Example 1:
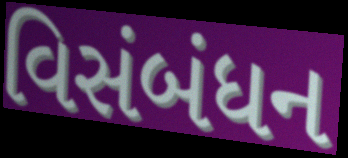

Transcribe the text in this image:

વિસંબંધન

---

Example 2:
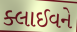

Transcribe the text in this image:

ક્લાઈવને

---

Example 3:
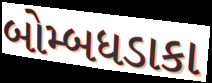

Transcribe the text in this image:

બોમ્બધડાકા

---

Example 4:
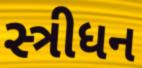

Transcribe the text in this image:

સ્ત્રીધન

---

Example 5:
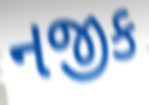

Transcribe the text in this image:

નજીક